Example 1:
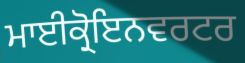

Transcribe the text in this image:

ਮਾਈਕ੍ਰੋਇਨਵਰਟਰ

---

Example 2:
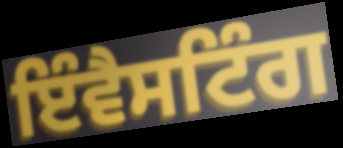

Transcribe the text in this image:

ਇੰਵੈਸਟਿੰਗ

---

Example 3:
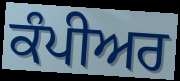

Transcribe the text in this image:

ਕੰਪੀਅਰ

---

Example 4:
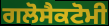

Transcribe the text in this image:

ਗਲੋਸੈਕਟੋਮੀ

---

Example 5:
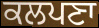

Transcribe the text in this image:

ਕਲਪਣਾ